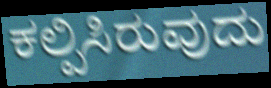
ಕಲ್ಪಿಸಿರುವುದು